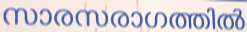
സാരസരാഗത്തിൽ